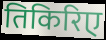
तिकिरिए